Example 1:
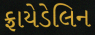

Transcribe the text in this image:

ફ્રાયેડેલિન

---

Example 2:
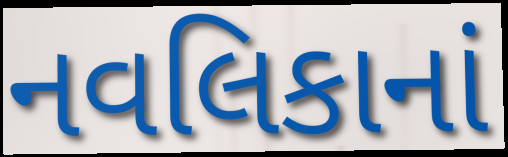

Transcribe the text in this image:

નવલિકાનાં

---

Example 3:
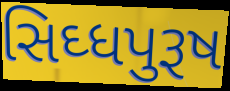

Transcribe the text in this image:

સિઘ્ધપુરૂષ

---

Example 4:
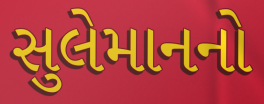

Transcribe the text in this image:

સુલેમાનનો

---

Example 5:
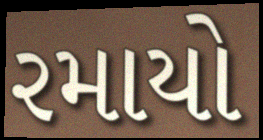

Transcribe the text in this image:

રમાયો